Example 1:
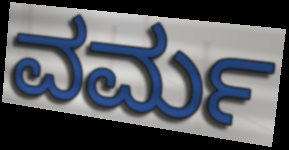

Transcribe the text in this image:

ವರ್ಮ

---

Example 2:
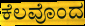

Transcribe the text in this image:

ಕೆಲವೊಂದ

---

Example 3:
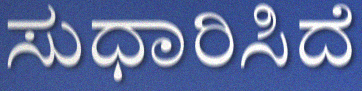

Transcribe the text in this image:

ಸುಧಾರಿಸಿದೆ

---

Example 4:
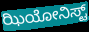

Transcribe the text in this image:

ಝಿಯೋನಿಸ್ಟ್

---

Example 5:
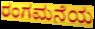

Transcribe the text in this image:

ರಂಗಮನೆಯ